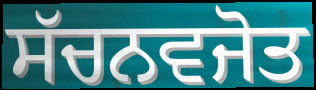
ਸੱਚਨਵਜੋਤ